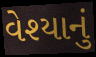
વેશ્યાનું